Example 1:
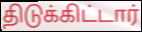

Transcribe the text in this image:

திடுக்கிட்டார்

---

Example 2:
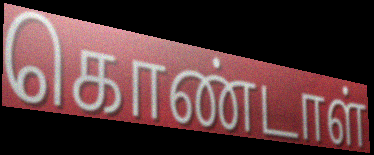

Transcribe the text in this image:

கொண்டாள்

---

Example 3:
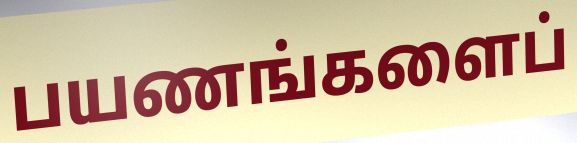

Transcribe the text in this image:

பயணங்களைப்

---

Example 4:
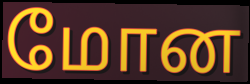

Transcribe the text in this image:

மோன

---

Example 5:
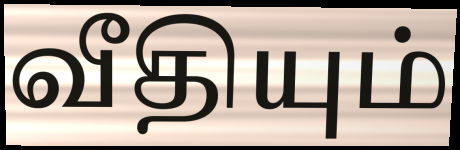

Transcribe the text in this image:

வீதியும்